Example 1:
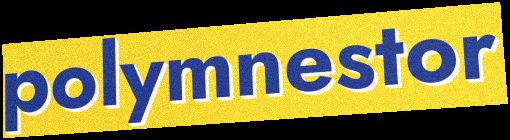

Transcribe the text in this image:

polymnestor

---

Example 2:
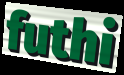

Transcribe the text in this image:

futhi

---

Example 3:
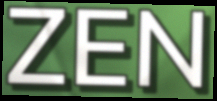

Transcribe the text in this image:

ZEN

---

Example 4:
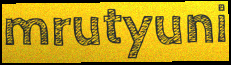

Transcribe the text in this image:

mrutyuni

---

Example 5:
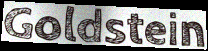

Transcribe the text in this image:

Goldstein